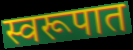
स्वरूपात